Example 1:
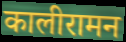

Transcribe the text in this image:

कालीरामन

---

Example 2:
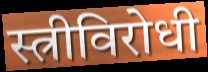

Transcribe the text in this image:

स्त्रीविरोधी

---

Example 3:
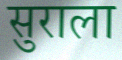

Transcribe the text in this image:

सुराला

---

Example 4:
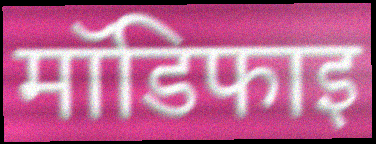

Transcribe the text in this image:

मॉडिफाइ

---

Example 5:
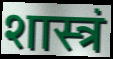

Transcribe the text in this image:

शास्त्रं